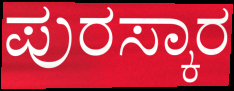
ಪುರಸ್ಕಾರ